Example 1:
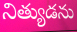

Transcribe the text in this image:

నిత్యుడను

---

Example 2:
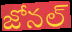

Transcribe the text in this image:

జోనల్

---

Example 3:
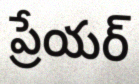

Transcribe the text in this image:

ప్రేయర్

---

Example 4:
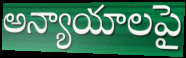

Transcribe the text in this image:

అన్యాయాలపై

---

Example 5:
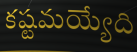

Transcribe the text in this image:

కష్టమయ్యేది